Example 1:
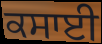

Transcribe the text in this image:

ਕਸਾਈ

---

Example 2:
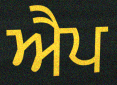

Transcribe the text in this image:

ਐਪ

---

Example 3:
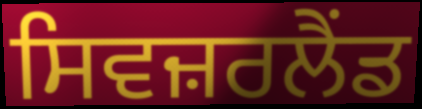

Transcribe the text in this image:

ਸਿਵਜ਼ਰਲੈਂਡ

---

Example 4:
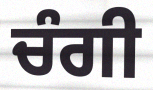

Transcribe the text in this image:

ਚੰਗੀ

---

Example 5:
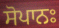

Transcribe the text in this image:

ਸੋਪਾਨਃ